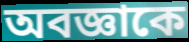
অবজ্ঞাকে